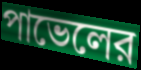
পাভেলের